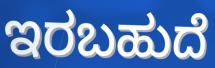
ಇರಬಹುದೆ